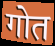
गोत